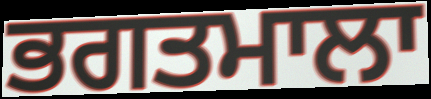
ਭਗਤਮਾਲਾ